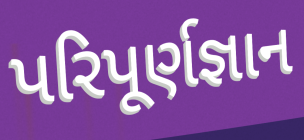
પરિપૂર્ણજ્ઞાન